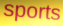
sports